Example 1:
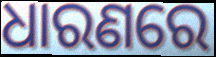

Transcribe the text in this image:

ଧାରଣରେ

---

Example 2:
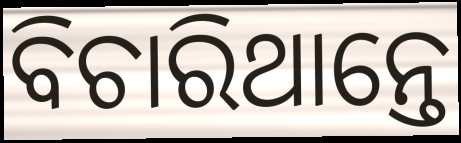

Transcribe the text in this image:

ବିଚାରିଥାନ୍ତେ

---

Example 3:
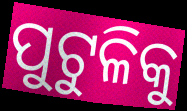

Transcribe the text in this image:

ପୁଟୁଳିକୁ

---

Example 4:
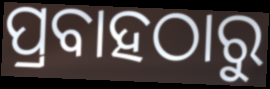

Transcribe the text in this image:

ପ୍ରବାହଠାରୁ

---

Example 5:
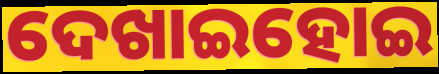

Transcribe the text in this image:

ଦେଖାଇହୋଇ